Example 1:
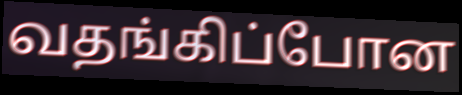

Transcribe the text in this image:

வதங்கிப்போன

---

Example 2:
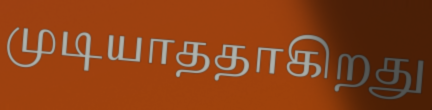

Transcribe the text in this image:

முடியாததாகிறது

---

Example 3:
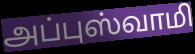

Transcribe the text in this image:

அப்புஸ்வாமி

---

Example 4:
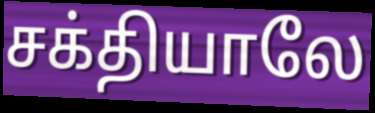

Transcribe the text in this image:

சக்தியாலே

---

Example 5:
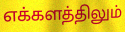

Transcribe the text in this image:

எக்களத்திலும்